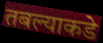
तबल्याकडे